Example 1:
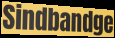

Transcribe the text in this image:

Sindbandge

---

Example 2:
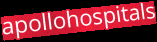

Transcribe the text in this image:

apollohospitals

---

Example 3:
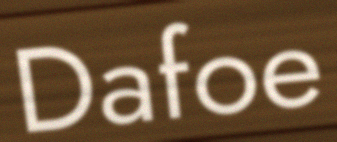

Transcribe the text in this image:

Dafoe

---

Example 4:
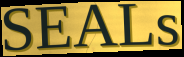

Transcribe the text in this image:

SEALs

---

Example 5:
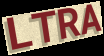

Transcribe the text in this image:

LTRA